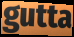
gutta